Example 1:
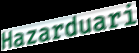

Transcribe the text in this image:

Hazarduari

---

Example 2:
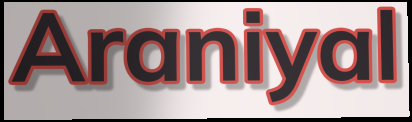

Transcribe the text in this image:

Araniyal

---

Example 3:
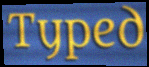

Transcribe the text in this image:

Typed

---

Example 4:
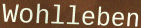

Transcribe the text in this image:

Wohlleben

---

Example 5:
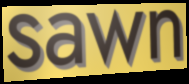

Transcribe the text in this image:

sawn